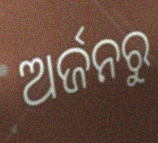
ଅର୍ଜନରୁ